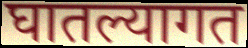
घातल्यागत